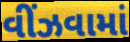
વીંઝવામાં